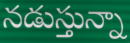
నడుస్తున్నా